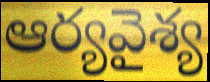
ఆర్యవైశ్య